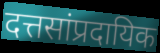
दत्तसांप्रदायिक